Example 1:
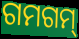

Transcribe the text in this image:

ଗମଗମ୍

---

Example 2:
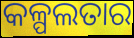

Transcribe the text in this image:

କଳ୍ପଲତାର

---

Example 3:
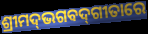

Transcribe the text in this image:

ଶ୍ରୀମଦ୍‌ଭଗବଦ୍‌ଗୀତାରେ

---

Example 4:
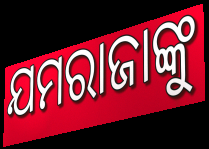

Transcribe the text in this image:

ଯମରାଜାଙ୍କୁ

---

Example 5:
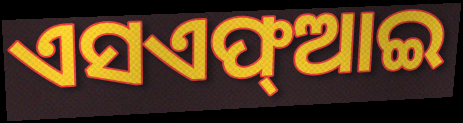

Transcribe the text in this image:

ଏସଏଫ୍ଆଇ